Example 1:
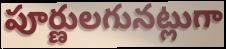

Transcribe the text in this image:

పూర్ణులగునట్లుగా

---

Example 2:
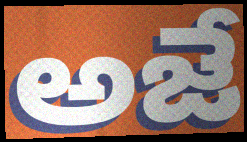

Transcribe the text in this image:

అజే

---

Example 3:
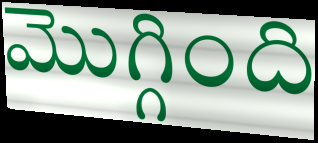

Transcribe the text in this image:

మొగ్గింది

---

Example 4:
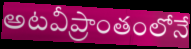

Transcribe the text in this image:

అటవీప్రాంతంలోనే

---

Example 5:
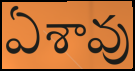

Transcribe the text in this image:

ఏశావు